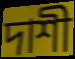
দাশী